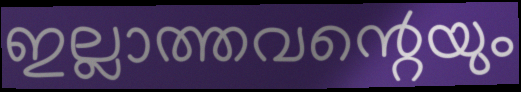
ഇല്ലാത്തവന്റെയും